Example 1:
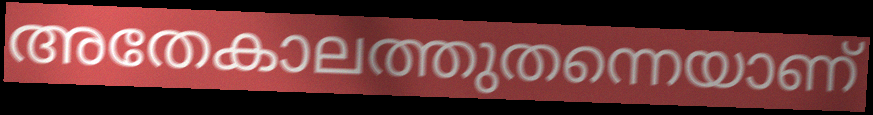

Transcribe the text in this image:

അതേകാലത്തുതന്നെയാണ്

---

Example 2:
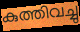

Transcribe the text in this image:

കുത്തിവച്ചു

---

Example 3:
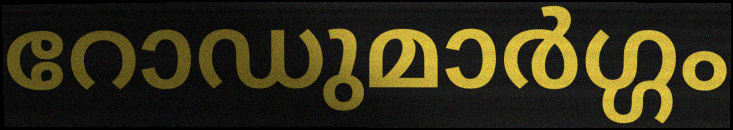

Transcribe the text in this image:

റോഡുമാർഗ്ഗം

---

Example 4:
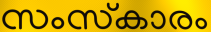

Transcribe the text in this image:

സംസ്‌കാരം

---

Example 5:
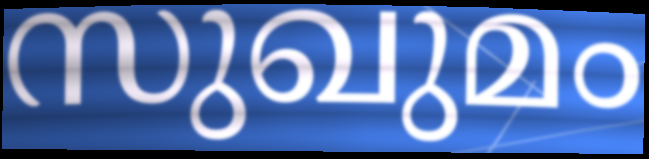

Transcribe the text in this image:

സുഖുമം